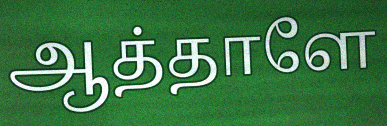
ஆத்தாளே